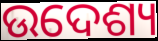
ଉଦେଶ୍ୟ